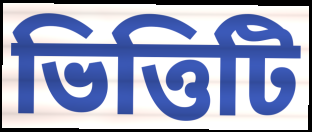
ভিত্তিটি